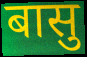
बासु